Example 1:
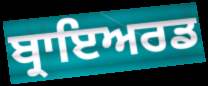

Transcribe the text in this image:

ਬ੍ਰਾਇਅਰਡ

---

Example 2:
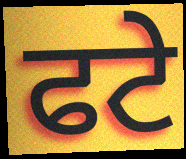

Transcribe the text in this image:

ਫਟੇ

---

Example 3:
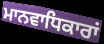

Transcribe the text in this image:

ਮਾਨਵਾਧਿਕਾਰਾਂ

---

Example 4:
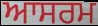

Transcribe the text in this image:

ਆਸਰਮ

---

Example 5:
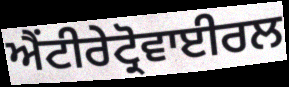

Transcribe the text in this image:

ਐਂਟੀਰੇਟ੍ਰੋਵਾਈਰਲ